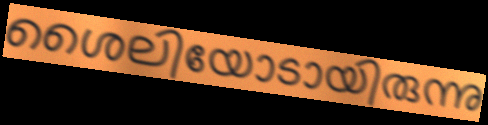
ശൈലിയോടായിരുന്നു